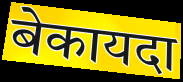
बेकायदा